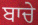
ਬਾਚੇ